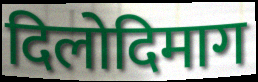
दिलोदिमाग